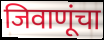
जिवाणूंचा